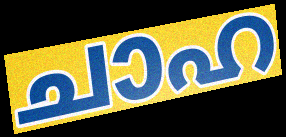
ചാഹ